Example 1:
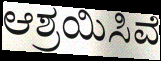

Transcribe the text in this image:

ಆಶ್ರಯಿಸಿವೆ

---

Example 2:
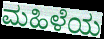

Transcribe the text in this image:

ಮಹಿಳೆಯ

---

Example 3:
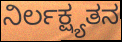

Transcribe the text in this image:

ನಿರ್ಲಕ್ಷ್ಯತನ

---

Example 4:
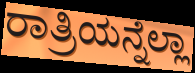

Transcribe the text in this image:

ರಾತ್ರಿಯನ್ನೆಲ್ಲಾ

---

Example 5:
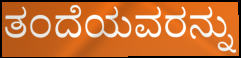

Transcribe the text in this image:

ತಂದೆಯವರನ್ನು